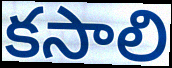
కసాలి